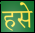
हसे